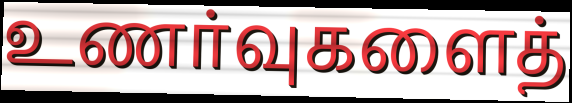
உணர்வுகளைத்